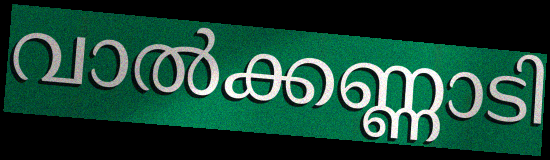
വാൽക്കണ്ണാടി